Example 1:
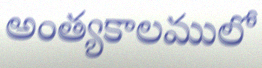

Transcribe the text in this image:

అంత్యకాలములో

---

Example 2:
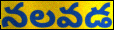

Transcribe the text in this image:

నలవడ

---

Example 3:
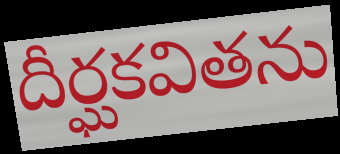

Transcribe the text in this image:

దీర్ఘకవితను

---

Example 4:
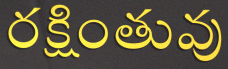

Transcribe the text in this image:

రక్షింతువు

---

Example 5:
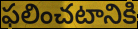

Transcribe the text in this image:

ఫలించటానికి